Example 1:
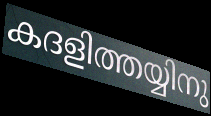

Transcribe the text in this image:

കദളിത്തയ്യിനു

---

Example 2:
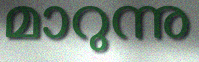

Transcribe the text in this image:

മാറുന്നു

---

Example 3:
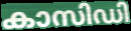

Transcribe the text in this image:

കാസിഡി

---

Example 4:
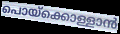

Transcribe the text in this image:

പൊയ്ക്കൊള്ളാൻ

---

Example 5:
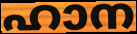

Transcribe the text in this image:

ഹാന